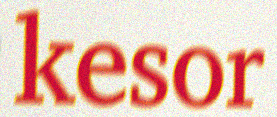
kesor